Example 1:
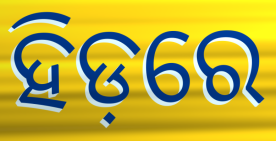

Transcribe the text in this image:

ହିଡ଼ରେ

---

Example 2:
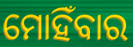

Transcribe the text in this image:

ମୋହିଁବାର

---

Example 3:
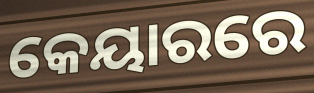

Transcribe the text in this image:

କେୟାରରେ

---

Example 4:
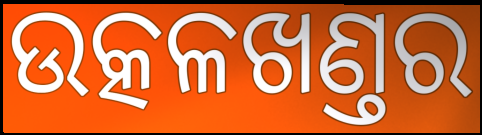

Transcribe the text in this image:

ଉତ୍କଳଖଣ୍ତର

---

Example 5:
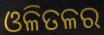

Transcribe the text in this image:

ଓଳିତଳର